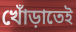
খোঁড়াতেই